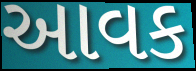
આવક